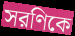
সরণিকে